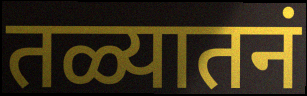
तळ्यातनं